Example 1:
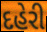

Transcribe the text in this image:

દહેરી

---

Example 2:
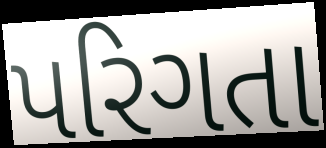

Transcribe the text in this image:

પરિગતા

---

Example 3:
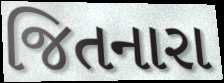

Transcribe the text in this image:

જિતનારા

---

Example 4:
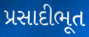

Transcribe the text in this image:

પ્રસાદીભૂત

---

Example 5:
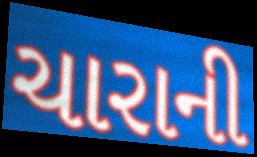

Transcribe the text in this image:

ચારાની